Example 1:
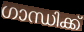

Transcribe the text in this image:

ഗാന്ധിക്ക്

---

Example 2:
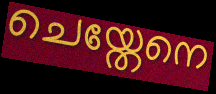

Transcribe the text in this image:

ചെയ്തേനെ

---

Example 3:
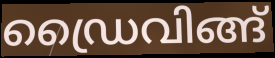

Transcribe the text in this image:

ഡ്രൈവിങ്ങ്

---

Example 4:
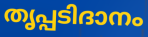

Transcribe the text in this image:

തൃപ്പടിദാനം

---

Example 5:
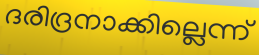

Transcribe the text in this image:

ദരിദ്രനാക്കില്ലെന്ന്